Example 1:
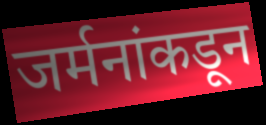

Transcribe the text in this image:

जर्मनांकडून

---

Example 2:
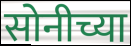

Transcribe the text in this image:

सोनीच्या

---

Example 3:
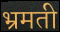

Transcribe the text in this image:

भ्रमती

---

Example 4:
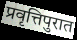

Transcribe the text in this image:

प्रवृत्तिपुरात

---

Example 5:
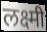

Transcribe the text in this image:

लक्ष्मी